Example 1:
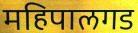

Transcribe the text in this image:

महिपालगड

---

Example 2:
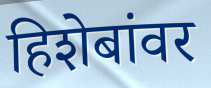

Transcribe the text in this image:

हिशेबांवर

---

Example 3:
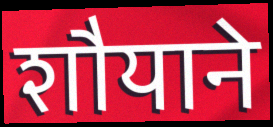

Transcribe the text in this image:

शौयाने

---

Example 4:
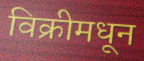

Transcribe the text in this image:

विक्रीमधून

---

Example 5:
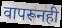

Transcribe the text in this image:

वापरूनही